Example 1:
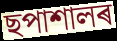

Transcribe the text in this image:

ছপাশালৰ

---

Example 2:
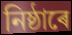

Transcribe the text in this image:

নিষ্ঠাৰে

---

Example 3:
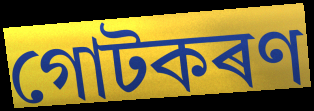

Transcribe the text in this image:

গোটকৰণ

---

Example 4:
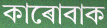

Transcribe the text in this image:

কাৰোবাক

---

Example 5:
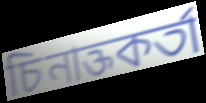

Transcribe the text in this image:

চিনাক্তকৰ্তা